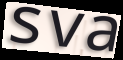
sva